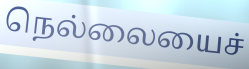
நெல்லையைச்